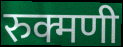
रुक्मणी